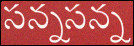
సన్నసన్న